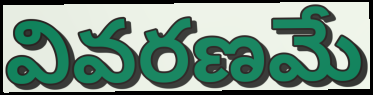
వివరణమే